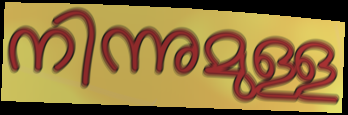
നിന്നുമുള്ള